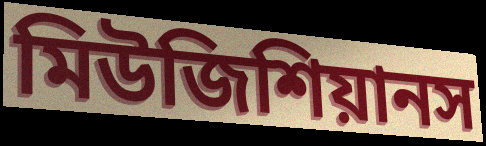
মিউজিশিয়ানস